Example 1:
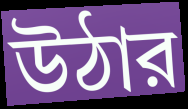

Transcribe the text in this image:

উঠার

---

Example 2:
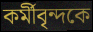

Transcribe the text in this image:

কর্মীবৃন্দকে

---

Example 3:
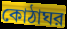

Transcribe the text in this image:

কোঠাঘর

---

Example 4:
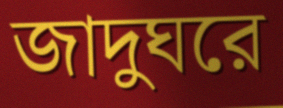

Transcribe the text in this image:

জাদুঘরে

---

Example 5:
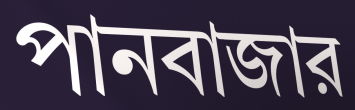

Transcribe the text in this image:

পানবাজার